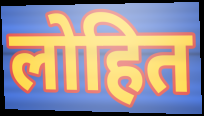
लोहित